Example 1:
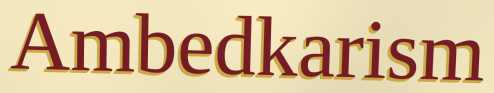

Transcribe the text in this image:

Ambedkarism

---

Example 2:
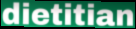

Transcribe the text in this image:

dietitian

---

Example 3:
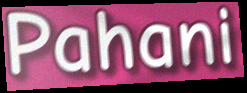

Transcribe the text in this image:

Pahani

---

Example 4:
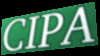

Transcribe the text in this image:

CIPA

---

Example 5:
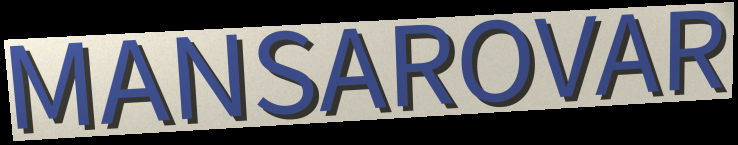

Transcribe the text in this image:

MANSAROVAR